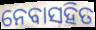
ନେବାସହିତ